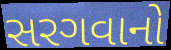
સરગવાનો